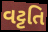
વટ્ટતિ